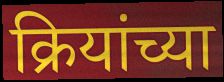
क्रियांच्या